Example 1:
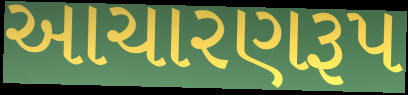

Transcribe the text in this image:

આચારણરૂપ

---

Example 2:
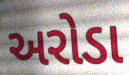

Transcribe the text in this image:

અરોડા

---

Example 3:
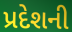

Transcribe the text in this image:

પ્રદેશની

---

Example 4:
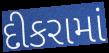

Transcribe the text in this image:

દીકરામાં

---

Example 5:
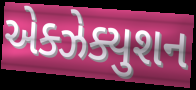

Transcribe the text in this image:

એક્ઝેક્યુશન